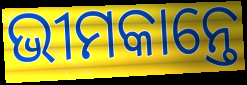
ଭୀମକାନ୍ତେ